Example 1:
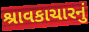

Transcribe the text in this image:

શ્રાવકાચારનું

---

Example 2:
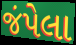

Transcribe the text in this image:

જંપેલા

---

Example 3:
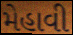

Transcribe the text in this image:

મેહાવી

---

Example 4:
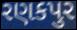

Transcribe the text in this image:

રણકપુર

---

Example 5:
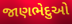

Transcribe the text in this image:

જાણભેદુઓ